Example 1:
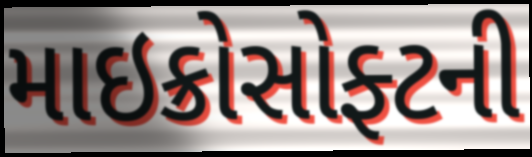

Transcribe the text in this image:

માઇક્રોસોફ્ટની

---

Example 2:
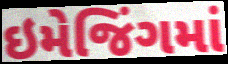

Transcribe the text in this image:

ઇમેજિંગમાં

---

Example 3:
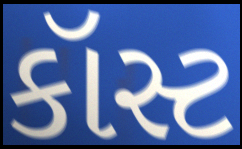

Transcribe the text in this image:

કૉસ્ટ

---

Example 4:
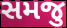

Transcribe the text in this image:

સમજુ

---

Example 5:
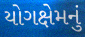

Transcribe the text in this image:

યોગક્ષેમનું